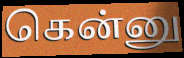
கென்னு